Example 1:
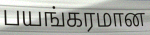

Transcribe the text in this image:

பயங்கரமான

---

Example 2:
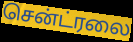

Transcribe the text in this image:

சென்ட்ரலை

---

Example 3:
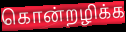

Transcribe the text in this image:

கொன்றழிக்க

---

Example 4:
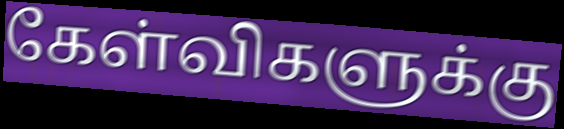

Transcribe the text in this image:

கேள்விகளுக்கு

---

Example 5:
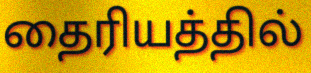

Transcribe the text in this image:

தைரியத்தில்